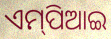
ଏମ୍‌ପିଆଇ